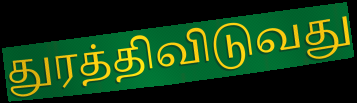
துரத்திவிடுவது